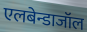
एलबेन्डाजॉल